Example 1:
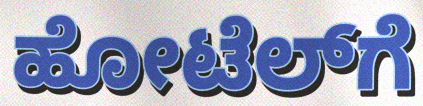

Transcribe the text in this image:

ಹೋಟೆಲ್‌ಗೆ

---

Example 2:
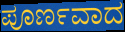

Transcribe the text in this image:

ಪೂರ್ಣವಾದ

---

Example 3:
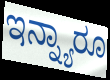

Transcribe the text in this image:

ಇನ್ನ್ಯಾರೂ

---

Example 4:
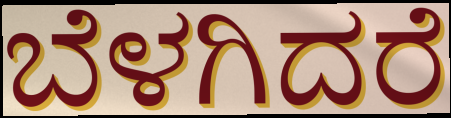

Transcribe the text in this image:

ಬೆಳಗಿದರೆ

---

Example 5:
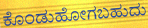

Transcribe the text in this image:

ಕೊಂಡುಹೋಗಬಹುದು